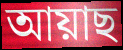
আয়াছ